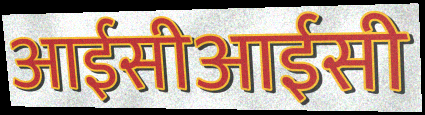
आईसीआईसी